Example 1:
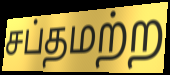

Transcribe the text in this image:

சப்தமற்ற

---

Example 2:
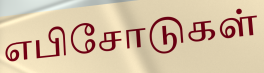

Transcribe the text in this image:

எபிசோடுகள்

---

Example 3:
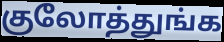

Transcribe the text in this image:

குலோத்துங்க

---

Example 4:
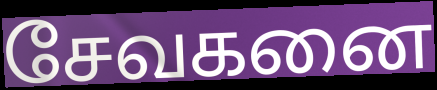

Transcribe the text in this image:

சேவகனை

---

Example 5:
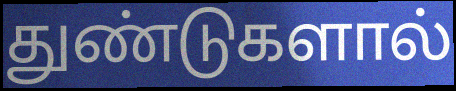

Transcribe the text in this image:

துண்டுகளால்